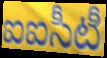
ఐఐసీటీ